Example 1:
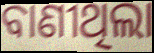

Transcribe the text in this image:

ବାଣୀଥିଲା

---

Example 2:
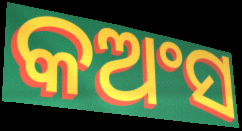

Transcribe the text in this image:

କଅଂସ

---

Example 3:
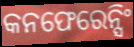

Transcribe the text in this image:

କନଫେରେନ୍ସିଂ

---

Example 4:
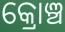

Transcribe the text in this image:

କ୍ରୋଞ୍ଚ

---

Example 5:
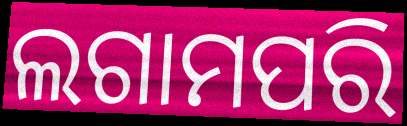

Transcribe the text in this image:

ଲଗାମପରି